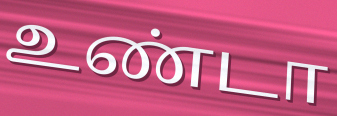
உண்டா